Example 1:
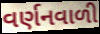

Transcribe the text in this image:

વર્ણનવાળી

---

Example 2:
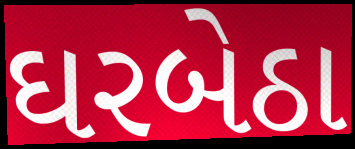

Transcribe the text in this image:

ઘરબેઠા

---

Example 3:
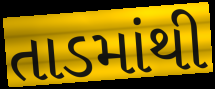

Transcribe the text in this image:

તાડમાંથી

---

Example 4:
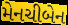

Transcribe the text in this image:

મેનચીબેન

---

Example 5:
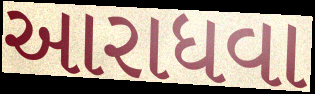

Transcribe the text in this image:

આરાધવા